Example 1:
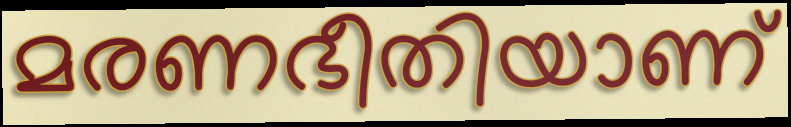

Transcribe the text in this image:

മരണഭീതിയാണ്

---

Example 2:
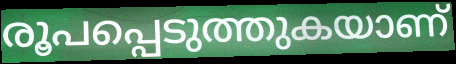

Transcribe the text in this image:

രൂപപ്പെടുത്തുകയാണ്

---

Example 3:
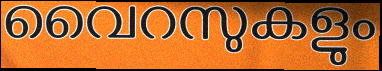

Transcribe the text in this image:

വൈറസുകളും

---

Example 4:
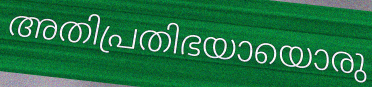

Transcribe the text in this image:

അതിപ്രതിഭയായൊരു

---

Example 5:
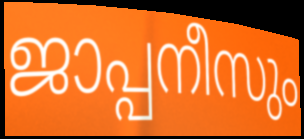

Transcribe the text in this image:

ജാപ്പനീസും